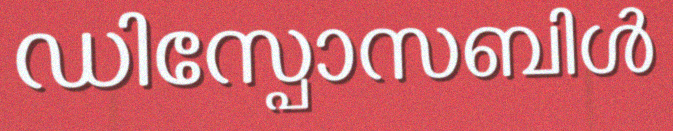
ഡിസ്പോസബിൾ